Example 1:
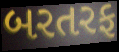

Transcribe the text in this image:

બરતરફ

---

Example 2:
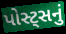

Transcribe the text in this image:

પોસ્ટ્સનું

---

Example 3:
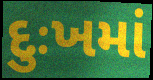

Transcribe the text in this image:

દુઃખમાં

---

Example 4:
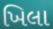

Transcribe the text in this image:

ખિલા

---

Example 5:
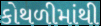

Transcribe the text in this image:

કોથળીમાંથી